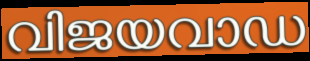
വിജയവാഡ